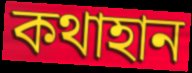
কথাহান